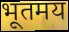
भूतमय